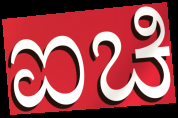
ಐಚಿ